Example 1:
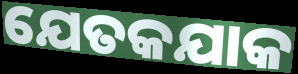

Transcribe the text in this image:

ଯେତକଯାକ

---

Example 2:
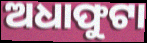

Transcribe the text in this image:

ଅଧାଫୁଟା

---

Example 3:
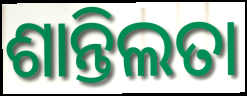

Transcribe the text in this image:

ଶାନ୍ତିଲତା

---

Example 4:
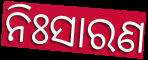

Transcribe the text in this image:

ନିଃସାରଣ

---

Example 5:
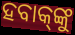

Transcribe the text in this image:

ହବାକ୍‌ଙ୍କୁ